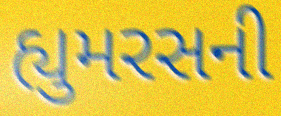
હ્યુમરસની